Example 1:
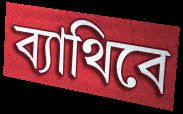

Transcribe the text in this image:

ব্যাথিবে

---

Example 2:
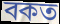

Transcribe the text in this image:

বকত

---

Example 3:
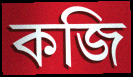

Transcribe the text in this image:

কজি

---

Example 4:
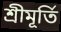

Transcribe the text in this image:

শ্রীমূর্তি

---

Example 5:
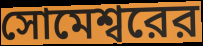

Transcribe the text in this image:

সোমেশ্বরের